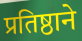
प्रतिष्ठाने